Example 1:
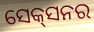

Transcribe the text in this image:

ସେକ୍‌ସନର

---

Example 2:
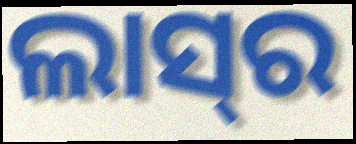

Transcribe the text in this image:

ଲାସ୍‌ର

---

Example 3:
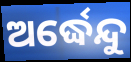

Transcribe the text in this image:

ଅର୍ଦ୍ଧେନ୍ଦୁ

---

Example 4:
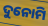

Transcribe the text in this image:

ଦୁନୋମି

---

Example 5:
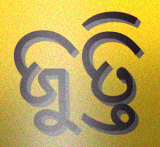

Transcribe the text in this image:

ଜୁତ୍ତି